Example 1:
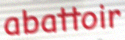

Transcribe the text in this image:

abattoir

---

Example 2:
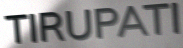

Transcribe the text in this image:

TIRUPATI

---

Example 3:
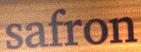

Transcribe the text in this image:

safron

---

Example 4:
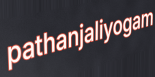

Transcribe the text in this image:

pathanjaliyogam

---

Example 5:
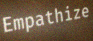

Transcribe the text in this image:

Empathize